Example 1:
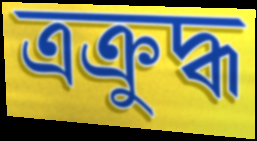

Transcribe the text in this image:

ত্রক্রুদ্ধ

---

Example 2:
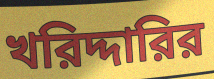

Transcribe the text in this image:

খরিদ্দারির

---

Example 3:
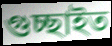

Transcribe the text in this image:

গুচ্ছাইত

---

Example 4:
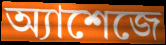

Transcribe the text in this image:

অ্যাশেজে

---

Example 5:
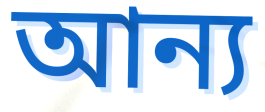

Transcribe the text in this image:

আন্য